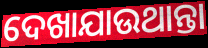
ଦେଖାଯାଉଥାନ୍ତା